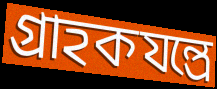
গ্রাহকযন্ত্রে